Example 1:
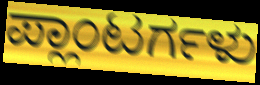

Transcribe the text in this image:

ಪ್ಲಾಂಟರ್ಗಳು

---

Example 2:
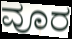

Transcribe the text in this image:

ವೂರ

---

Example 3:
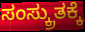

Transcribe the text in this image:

ಸಂಸ್ಕ್ರುತಕ್ಕೆ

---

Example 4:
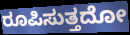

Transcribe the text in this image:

ರೂಪಿಸುತ್ತದೋ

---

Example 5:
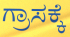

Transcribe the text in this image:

ಗ್ರಾಸಕ್ಕೆ